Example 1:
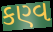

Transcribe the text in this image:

કણ્વ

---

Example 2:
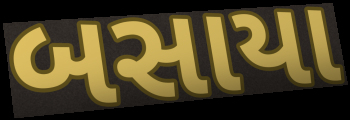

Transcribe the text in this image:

બસાયા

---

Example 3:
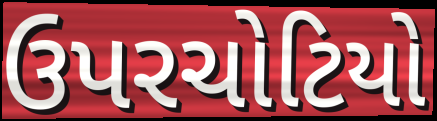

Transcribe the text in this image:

ઉપરચોટિયો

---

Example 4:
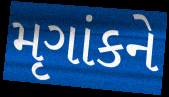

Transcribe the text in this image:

મૃગાંકને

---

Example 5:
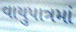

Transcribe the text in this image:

વાયુપાત્રમાં